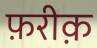
फ़रीक़